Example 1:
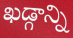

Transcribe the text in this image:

ఖడ్గాన్ని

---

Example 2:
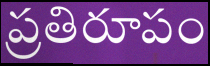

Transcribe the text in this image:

ప్రతిరూపం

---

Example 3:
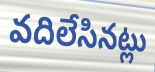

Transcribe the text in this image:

వదిలేసినట్లు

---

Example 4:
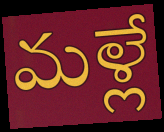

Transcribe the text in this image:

మళ్లే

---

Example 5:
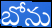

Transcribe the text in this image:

బోను